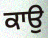
ਕਾਉ